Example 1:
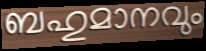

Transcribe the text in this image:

ബഹുമാനവും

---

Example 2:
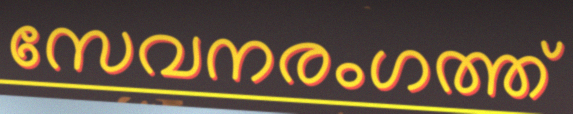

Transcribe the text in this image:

സേവനരംഗത്ത്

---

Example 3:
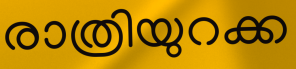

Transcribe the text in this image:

രാത്രിയുറക്ക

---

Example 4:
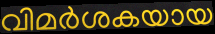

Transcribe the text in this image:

വിമർശകയായ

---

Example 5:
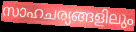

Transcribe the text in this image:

സാഹചര്യങ്ങളിലും